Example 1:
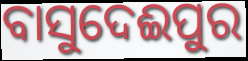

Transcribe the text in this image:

ବାସୁଦେଈପୁର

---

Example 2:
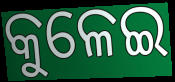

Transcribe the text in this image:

କୁଳେଇ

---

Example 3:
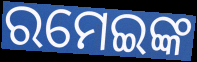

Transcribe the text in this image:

ରମେଇଙ୍କ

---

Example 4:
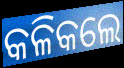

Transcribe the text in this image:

କଳିକଲେ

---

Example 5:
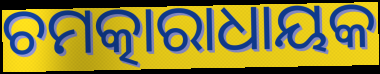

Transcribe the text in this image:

ଚମତ୍କାରାଧାୟକ